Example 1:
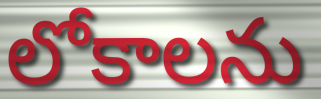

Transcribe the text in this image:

లోకాలను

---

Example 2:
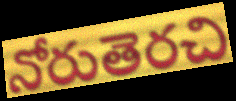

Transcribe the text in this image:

నోరుతెరచి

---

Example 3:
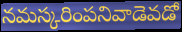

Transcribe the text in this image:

నమస్కరింపనివాడెవడో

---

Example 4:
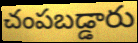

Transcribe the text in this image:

చంపబడ్డారు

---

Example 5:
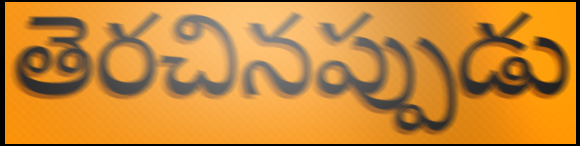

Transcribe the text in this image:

తెరచినప్పుడు